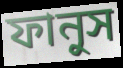
ফানুস